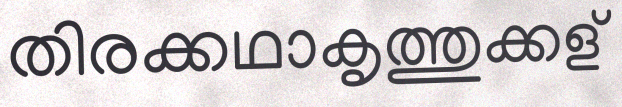
തിരക്കഥാകൃത്തുക്കള്